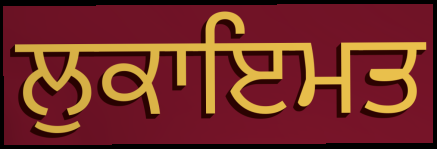
ਲੁਕਾਇਮਤ